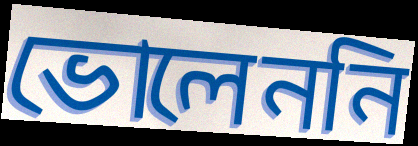
ভোলেননি